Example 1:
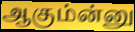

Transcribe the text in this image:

ஆகும்ன்னு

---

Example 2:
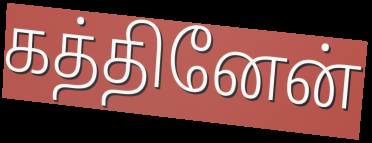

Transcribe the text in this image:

கத்தினேன்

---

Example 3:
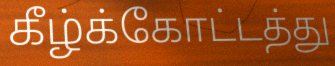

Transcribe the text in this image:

கீழ்க்கோட்டத்து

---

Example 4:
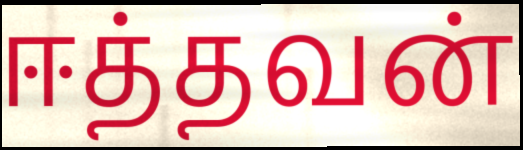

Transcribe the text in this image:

ஈத்தவன்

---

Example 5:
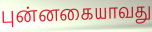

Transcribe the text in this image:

புன்னகையாவது